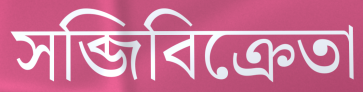
সব্জিবিক্রেতা